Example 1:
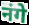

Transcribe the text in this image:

नंगे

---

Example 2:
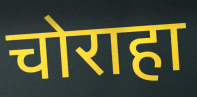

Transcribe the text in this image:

चोराहा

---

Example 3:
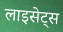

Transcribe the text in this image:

लाइसेट्स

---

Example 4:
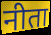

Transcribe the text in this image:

नीता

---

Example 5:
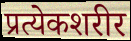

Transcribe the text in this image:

प्रत्येकशरीर